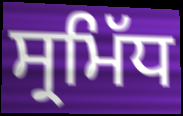
ਸ੍ਰਮਿੱਧ